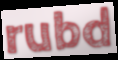
rubd